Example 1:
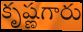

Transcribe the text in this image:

కృష్ణగారు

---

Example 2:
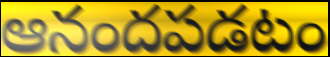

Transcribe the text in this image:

ఆనందపడటం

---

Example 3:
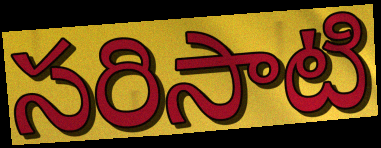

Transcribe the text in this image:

సరిసాటి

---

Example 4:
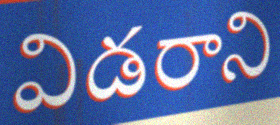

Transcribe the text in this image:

విడరాని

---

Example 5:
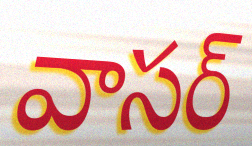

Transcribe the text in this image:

వాసర్